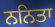
ਨਨਿਤਾ